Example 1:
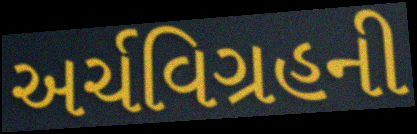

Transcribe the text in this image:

અર્ચવિગ્રહની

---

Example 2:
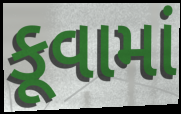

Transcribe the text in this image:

કૂવામાં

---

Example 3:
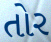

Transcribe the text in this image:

તોર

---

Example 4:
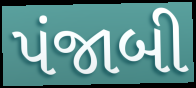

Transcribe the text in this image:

પંજાબી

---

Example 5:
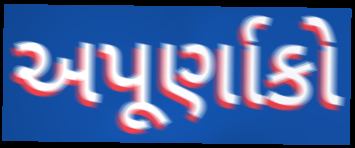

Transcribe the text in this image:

અપૂર્ણાકો